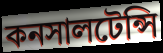
কনসালটেন্সি